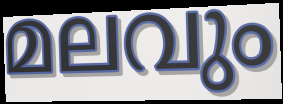
മലവും